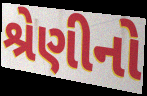
શ્રેણીનો